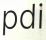
pdi